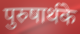
पुरुषार्थके